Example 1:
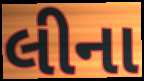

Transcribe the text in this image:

લીના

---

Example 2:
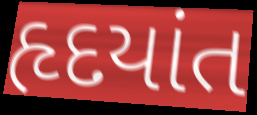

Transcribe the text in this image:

હૃદયાંત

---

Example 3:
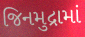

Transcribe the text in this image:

જિનમુદ્રામાં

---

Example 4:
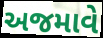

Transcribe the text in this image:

અજમાવે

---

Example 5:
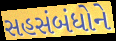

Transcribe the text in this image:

સહસંબંધોને